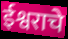
ईश्वराचे